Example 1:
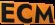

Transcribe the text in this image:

ECM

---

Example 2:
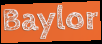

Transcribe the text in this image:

Baylor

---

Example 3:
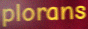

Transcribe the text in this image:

plorans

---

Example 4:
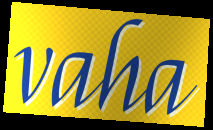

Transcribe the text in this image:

vaha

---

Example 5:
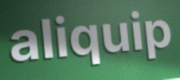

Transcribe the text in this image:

aliquip